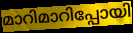
മാറിമാറിപ്പോയി